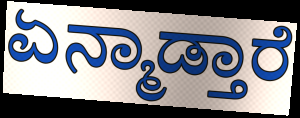
ಏನ್ಮಾಡ್ತಾರೆ